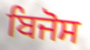
ਬਿਜੋਸ